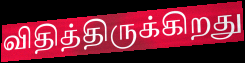
விதித்திருக்கிறது